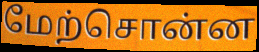
மேற்சொன்ன